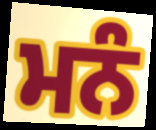
ਮਨੰ